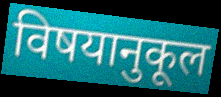
विषयानुकूल